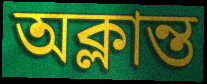
অক্লান্ত